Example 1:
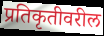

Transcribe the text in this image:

प्रतिकृतीवरील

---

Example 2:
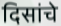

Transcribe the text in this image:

दिसांचे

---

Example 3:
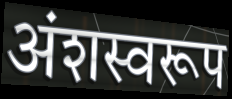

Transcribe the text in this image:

अंशस्वरूप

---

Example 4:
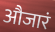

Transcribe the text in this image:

औजारं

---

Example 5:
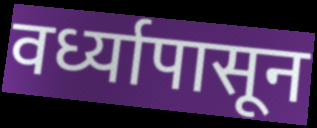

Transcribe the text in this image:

वर्ध्यापासून